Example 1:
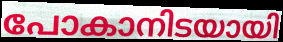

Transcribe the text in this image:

പോകാനിടയായി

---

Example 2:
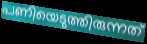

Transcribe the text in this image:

പണിയെടുത്തിരുന്നത്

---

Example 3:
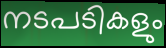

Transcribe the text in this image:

നടപടികളും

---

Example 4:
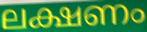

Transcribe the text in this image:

ലക്ഷണം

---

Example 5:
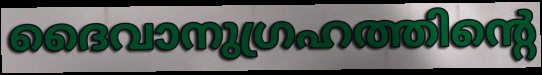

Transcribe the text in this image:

ദൈവാനുഗ്രഹത്തിന്റെ